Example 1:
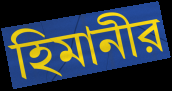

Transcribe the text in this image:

হিমানীর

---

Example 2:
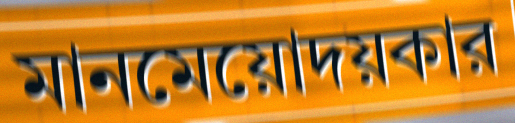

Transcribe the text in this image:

মানমেয়োদয়কার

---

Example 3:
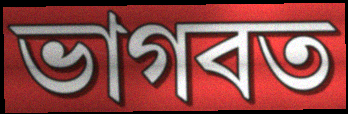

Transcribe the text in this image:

ভাগবত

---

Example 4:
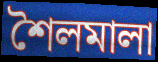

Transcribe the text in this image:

শৈলমালা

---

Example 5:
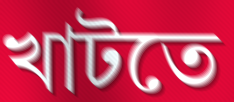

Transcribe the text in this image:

খাটতে